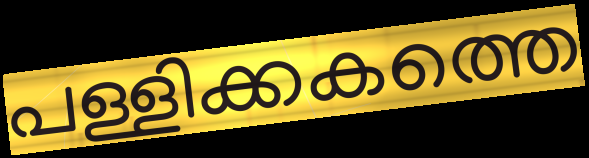
പള്ളിക്കകത്തെ